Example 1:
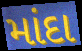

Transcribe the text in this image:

માંદા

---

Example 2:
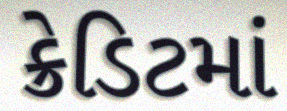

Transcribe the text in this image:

ક્રેડિટમાં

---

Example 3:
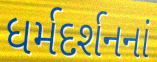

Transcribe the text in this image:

ધર્મદર્શનનાં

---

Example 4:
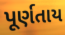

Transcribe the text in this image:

પૂર્ણતાય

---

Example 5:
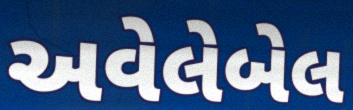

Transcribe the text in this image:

અવેલેબેલ